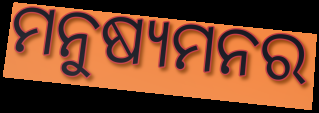
ମନୁଷ୍ୟମନର